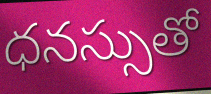
ధనస్సుతో